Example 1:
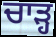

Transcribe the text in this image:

ਚਾਡ਼੍ਹ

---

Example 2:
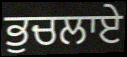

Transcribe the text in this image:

ਭੁਚਲਾਏ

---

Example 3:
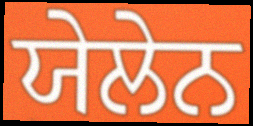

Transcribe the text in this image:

ਯੇਲੇਨ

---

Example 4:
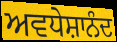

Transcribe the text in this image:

ਅਵਧੇਸ਼ਾਨੰਦ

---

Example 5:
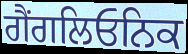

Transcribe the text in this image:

ਗੈਂਗਲਿਓਨਿਕ